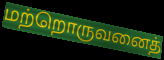
மற்றொருவனைத்